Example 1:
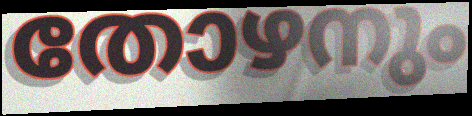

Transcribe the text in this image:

തോഴനും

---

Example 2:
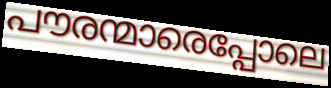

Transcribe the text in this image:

പൗരന്മാരെപ്പോലെ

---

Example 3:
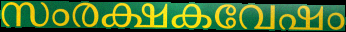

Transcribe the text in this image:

സംരക്ഷകവേഷം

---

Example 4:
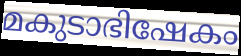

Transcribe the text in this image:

മകുടാഭിഷേകം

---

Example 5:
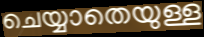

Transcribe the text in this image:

ചെയ്യാതെയുള്ള